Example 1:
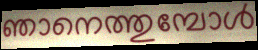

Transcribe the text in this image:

ഞാനെത്തുമ്പോൾ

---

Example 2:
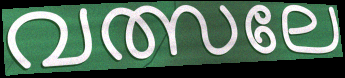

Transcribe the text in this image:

വത്സലേ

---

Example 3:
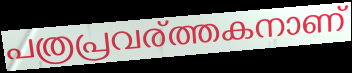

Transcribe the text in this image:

പത്രപ്രവര്ത്തകനാണ്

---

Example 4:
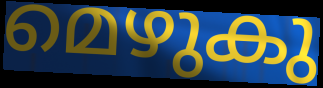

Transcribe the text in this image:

മെഴുകു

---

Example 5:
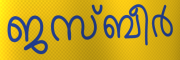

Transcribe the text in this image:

ജസ്ബീർ